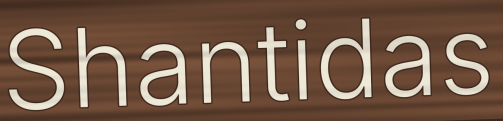
Shantidas